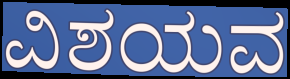
ವಿಶಯವ